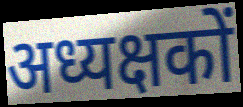
अध्यक्षकों